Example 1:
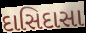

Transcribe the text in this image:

દાસિદાસા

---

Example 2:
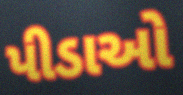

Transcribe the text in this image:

પીડાઓ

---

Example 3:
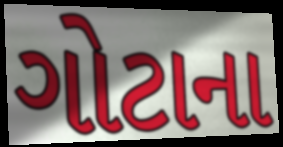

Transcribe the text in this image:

ગોટાના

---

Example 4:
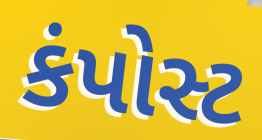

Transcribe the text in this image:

કંપોસ્ટ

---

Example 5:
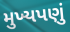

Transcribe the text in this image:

મુખ્યપણું